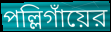
পল্লিগাঁয়ের